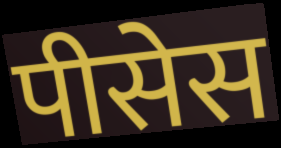
पीसेस